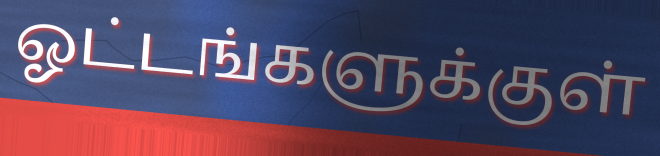
ஓட்டங்களுக்குள்